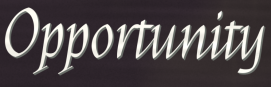
Opportunity